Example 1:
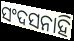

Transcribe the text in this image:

ସଂଦସନାହି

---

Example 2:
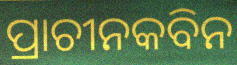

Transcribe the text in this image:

ପ୍ରାଚୀନକବିନ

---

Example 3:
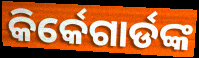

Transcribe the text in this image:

କିର୍କେଗାର୍ଡଙ୍କ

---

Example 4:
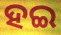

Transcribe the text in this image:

ହଇ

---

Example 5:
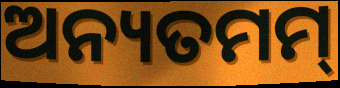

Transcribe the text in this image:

ଅନ୍ୟତମମ୍